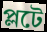
প্লটে